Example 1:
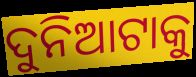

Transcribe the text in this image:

ଦୁନିଆଟାକୁ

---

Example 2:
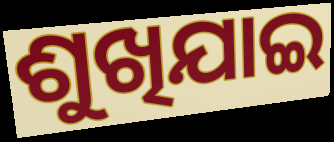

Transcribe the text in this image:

ଶୁଖିଯାଇ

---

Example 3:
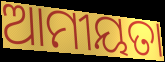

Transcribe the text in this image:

ଆମୀୟତା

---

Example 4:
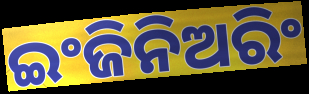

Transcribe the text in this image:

ଇଂଜିନିଅରିଂ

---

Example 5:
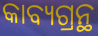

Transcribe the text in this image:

କାବ୍ୟଗ୍ରନ୍ଥ